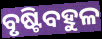
ବୃଷ୍ଟିବହୁଳ